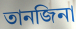
তানজিনা